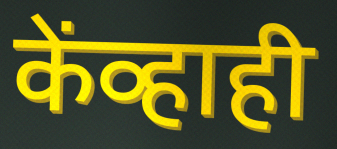
केंव्हाही